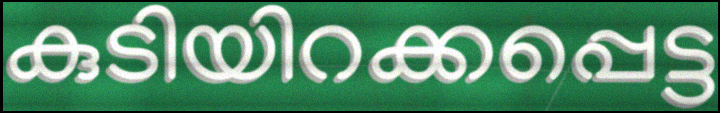
കുടിയിറക്കപ്പെട്ട